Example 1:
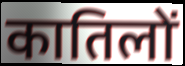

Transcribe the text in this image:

कातिलों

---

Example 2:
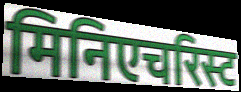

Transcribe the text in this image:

मिनिएचरिस्ट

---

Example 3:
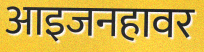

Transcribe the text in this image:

आइजनहावर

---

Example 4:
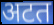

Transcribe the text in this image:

अटत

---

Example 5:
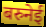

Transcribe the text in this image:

बरुनेई